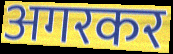
अगरकर